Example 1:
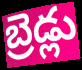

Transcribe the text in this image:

బ్రెడ్లు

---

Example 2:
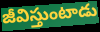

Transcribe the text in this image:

జీవిస్తుంటాడు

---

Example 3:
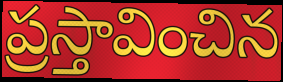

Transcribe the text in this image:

ప్రస్తావించిన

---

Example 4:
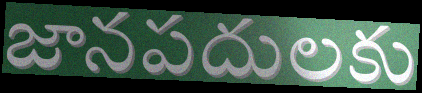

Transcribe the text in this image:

జానపదులకు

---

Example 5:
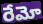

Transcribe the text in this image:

రేమో